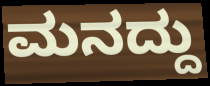
ಮನದ್ದು